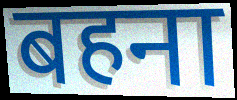
बहना